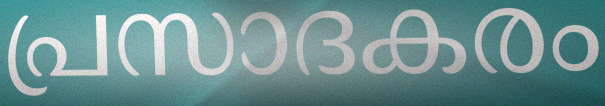
പ്രസാദകരം